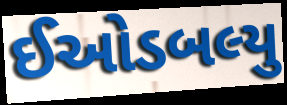
ઈઓડબલ્યુ